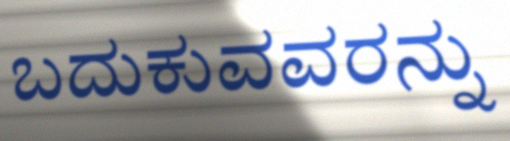
ಬದುಕುವವರನ್ನು